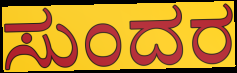
ಸುಂದರ